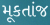
મૂકતાંજ